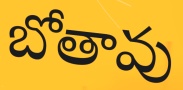
బోతావు